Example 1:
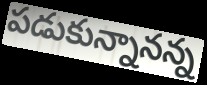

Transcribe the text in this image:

పడుకున్నానన్న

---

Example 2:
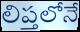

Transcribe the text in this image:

లిప్తలోనే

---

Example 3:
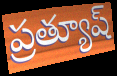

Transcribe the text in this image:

ప్రత్యూష్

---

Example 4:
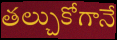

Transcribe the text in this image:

తల్చుకోగానే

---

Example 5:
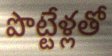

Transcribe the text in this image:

పొట్టేళ్లతో